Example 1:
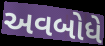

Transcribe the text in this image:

અવબોધે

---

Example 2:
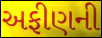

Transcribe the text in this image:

અફીણની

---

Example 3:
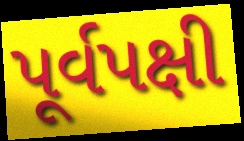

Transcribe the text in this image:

પૂર્વપક્ષી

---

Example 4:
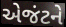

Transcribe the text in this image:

એજંટને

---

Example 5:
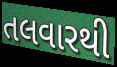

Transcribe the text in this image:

તલવારથી